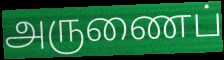
அருணைப்